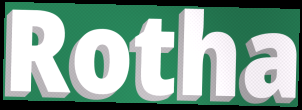
Rotha